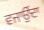
ਵਜਾਉਂਦਾ